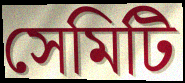
সেমিটি